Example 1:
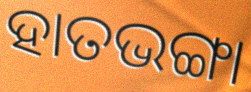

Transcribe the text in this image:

ହାତଭଙ୍ଗା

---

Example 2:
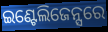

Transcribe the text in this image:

ଇଣ୍ଟେଲିଜେନ୍ସରେ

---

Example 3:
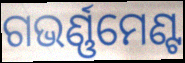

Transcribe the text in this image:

ଗଭର୍ଣ୍ଣମେଣ୍ଟ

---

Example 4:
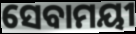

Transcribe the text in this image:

ସେବାମୟୀ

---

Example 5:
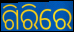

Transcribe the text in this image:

ଗିରିରେ